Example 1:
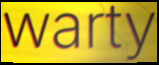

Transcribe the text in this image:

warty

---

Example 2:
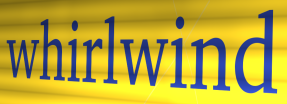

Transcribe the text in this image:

whirlwind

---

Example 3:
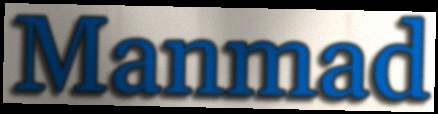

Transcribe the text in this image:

Manmad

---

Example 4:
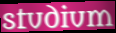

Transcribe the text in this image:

studium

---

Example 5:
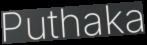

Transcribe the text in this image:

Puthaka